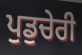
ਪੁਡੁਚੇਰੀ